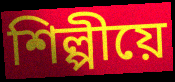
শিল্পীয়ে